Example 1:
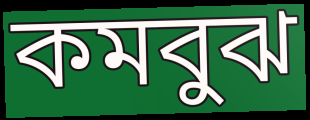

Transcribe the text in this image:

কমবুঝ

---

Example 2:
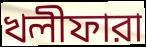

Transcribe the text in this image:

খলীফারা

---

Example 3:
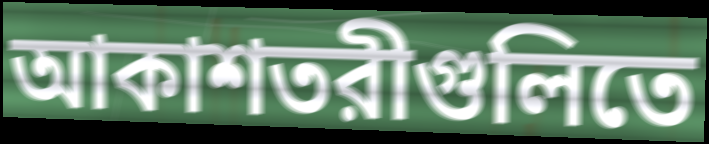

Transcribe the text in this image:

আকাশতরীগুলিতে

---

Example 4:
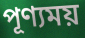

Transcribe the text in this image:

পূণ্যময়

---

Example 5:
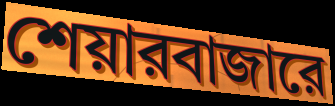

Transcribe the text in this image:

শেয়ারবাজারে